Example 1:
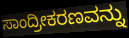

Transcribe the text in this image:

ಸಾಂದ್ರೀಕರಣವನ್ನು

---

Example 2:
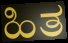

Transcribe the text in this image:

ಹಿತ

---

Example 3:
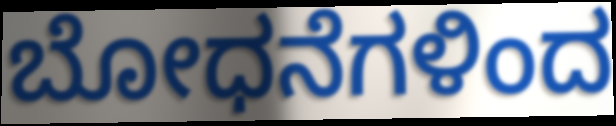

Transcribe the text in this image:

ಬೋಧನೆಗಳಿಂದ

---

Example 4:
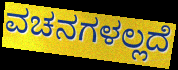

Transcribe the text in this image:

ವಚನಗಳಲ್ಲದೆ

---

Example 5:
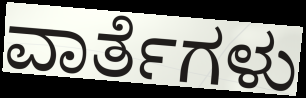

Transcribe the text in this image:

ವಾರ್ತೆಗಳು